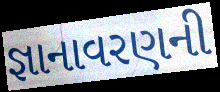
જ્ઞાનાવરણની